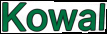
Kowal